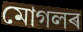
মোগলৰ